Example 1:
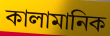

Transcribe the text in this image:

কালামানিক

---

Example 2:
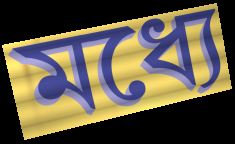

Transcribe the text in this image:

মধ্যে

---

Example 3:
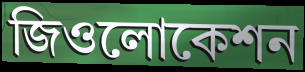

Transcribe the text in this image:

জিওলোকেশন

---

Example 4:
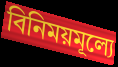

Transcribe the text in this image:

বিনিময়মূল্যে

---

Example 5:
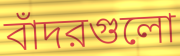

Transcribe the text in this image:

বাঁদরগুলো